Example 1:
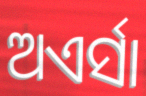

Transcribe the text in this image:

ଅଏର୍ସା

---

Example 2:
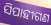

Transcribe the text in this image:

ସିପାହୀଗଣ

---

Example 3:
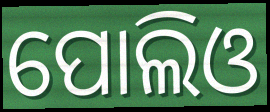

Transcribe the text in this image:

ପୋଲିଓ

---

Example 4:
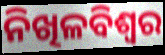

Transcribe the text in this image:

ନିଖିଳବିଶ୍ୱର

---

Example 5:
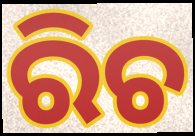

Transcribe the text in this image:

ରିଚ